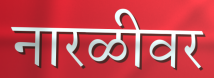
नारळीवर